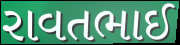
રાવતભાઈ